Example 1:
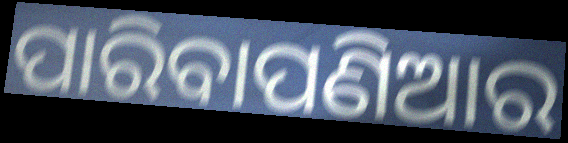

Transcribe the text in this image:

ପାରିବାପଣିଆର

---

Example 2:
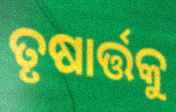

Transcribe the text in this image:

ତୃଷାର୍ତ୍ତକୁ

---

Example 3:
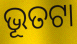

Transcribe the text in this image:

ଭୂତଟା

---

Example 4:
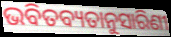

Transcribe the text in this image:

ଭବିତବ୍ୟତାନୁସାରିଣୀ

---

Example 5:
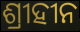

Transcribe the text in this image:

ଶ୍ରୀହୀନ